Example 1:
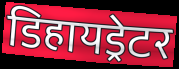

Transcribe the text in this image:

डिहायड्रेटर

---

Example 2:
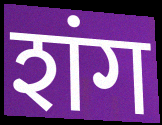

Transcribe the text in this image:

शंग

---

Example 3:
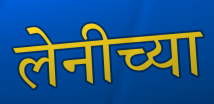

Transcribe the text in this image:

लेनीच्या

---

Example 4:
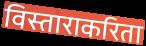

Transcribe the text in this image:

विस्ताराकरिता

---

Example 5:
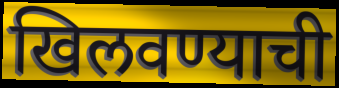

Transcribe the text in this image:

खिलवण्याची